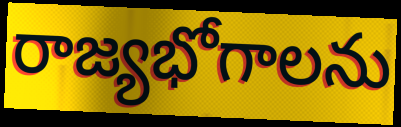
రాజ్యభోగాలను